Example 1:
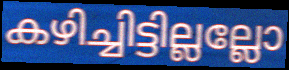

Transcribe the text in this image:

കഴിച്ചിട്ടില്ലല്ലോ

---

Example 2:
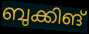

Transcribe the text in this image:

ബുക്കിങ്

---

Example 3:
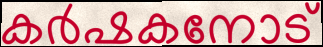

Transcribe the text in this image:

കർഷകനോട്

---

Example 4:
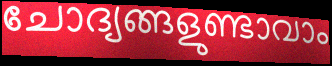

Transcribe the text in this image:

ചോദ്യങ്ങളുണ്ടാവാം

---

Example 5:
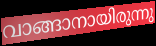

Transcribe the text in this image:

വാങ്ങാനായിരുന്നു